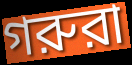
গরুরা